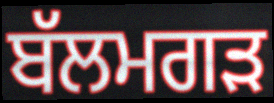
ਬੱਲਮਗੜ